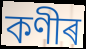
কণীৰ